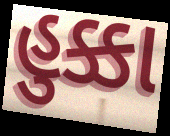
હુક્કા